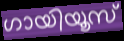
ഗായിയൂസ്